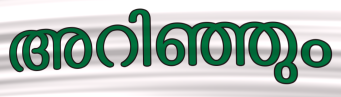
അറിഞ്ഞും